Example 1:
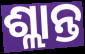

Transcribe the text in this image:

ଶ୍ଲାନ୍ତ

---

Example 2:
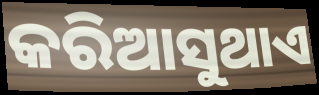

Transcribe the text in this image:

କରିଆସୁଥାଏ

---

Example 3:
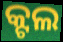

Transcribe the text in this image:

କ୍ଟଲ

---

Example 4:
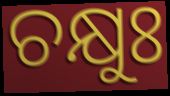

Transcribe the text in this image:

ଚକ୍ଷୁଃ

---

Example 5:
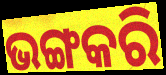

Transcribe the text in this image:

ଭଙ୍ଗକରି